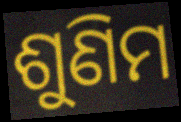
ଶୁଣିମ